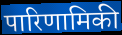
पारिणामिकी